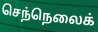
செந்நெலைக்